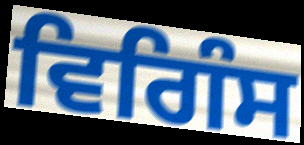
ਵਿਗਿੰਸ